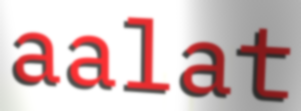
aalat